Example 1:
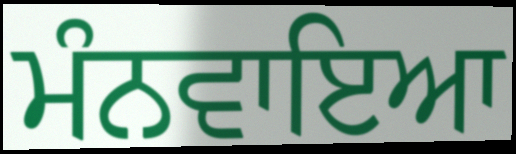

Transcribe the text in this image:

ਮੰਨਵਾਇਆ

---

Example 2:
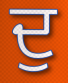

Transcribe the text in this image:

ਦੁ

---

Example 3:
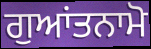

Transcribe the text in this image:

ਗੁਆਂਤਨਾਮੋ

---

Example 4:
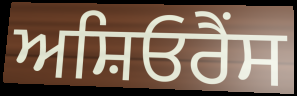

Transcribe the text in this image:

ਅਸ਼ਿਓਰੈਂਸ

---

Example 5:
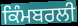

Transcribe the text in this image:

ਕਿੰਮਬਰਲੀ